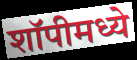
शॉपीमध्ये